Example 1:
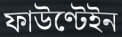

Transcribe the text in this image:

ফাউণ্টেইন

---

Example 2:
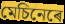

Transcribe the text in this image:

মেচিনেৰে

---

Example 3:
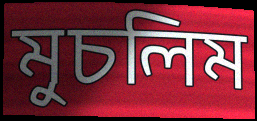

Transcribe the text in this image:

মুচলিম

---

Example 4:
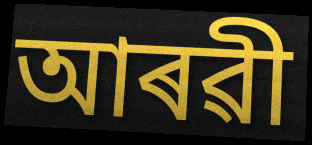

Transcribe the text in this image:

আৰৱী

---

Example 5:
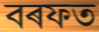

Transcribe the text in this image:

বৰফত